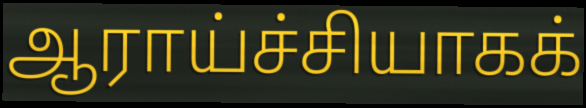
ஆராய்ச்சியாகக்